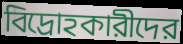
বিদ্রোহকারীদের